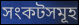
সংকটসমূহ